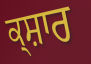
ਕ੍ਸ਼ਾਰ